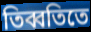
তিব্বতিতে